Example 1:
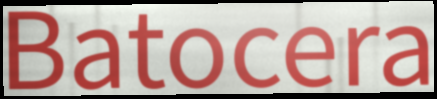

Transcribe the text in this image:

Batocera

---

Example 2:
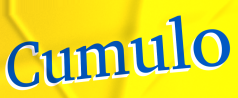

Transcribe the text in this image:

Cumulo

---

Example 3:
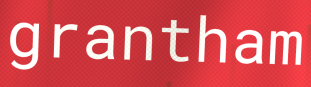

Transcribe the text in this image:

grantham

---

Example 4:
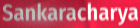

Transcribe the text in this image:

Sankaracharya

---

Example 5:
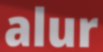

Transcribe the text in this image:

alur